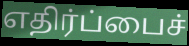
எதிர்ப்பைச்